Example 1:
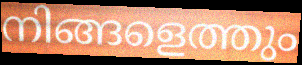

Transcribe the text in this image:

നിങ്ങളെത്തും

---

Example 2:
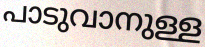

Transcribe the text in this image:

പാടുവാനുള്ള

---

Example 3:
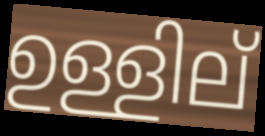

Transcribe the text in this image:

ഉള്ളില്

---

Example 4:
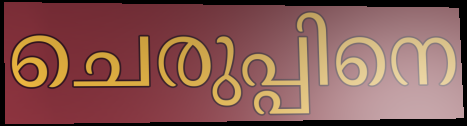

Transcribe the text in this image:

ചെരുപ്പിനെ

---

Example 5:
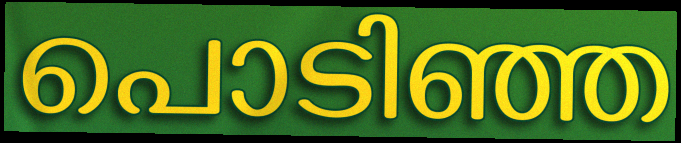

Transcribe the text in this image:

പൊടിഞ്ഞ